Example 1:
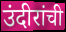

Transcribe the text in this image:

उंदीरांची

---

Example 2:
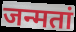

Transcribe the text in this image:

जन्मतां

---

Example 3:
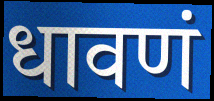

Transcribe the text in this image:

धावणं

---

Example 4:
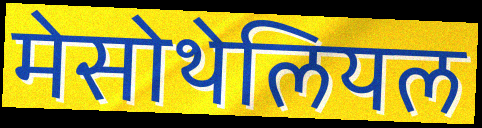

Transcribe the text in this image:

मेसोथेलियल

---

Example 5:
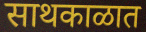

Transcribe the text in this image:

साथकाळात